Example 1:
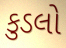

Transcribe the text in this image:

કુડલો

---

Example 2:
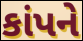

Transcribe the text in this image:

કાંપને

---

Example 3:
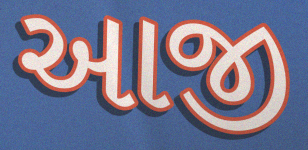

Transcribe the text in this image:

આજી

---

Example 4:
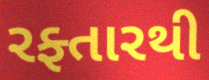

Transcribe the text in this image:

રફ્તારથી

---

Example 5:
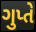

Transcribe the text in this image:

ગુપ્તે